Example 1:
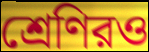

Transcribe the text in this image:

শ্রেণিরও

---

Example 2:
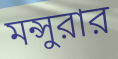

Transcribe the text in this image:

মন্সুরার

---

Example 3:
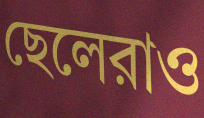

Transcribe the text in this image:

ছেলেরাও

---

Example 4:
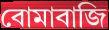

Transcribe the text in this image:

বোমাবাজি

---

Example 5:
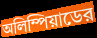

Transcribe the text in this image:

অলিম্পিয়াডের